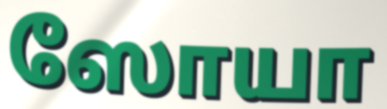
ஸோயா